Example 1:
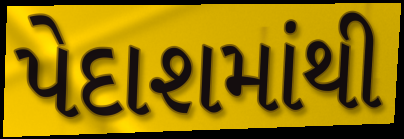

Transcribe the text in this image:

પેદાશમાંથી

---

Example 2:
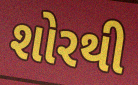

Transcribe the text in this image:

શોરથી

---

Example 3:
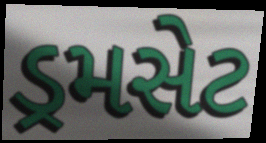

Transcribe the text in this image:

ડ્રમસેટ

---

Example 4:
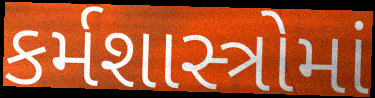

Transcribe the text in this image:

કર્મશાસ્ત્રોમાં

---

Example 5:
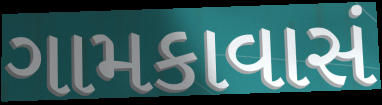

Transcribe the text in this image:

ગામકાવાસં